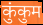
कुंकुम